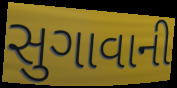
સુગાવાની